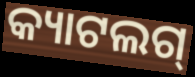
କ୍ୟାଟଲଗ୍